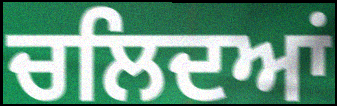
ਚਲਿਦਆਂ